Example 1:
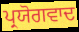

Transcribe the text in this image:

ਪ੍ਰਯੋਗਵਾਦ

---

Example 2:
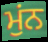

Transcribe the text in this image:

ਮੁਂਨ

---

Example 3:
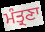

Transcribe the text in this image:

ਮੰਤ੍ਰਣਾ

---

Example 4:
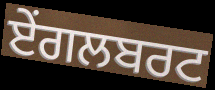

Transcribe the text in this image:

ਏਂਗਲਬਰਟ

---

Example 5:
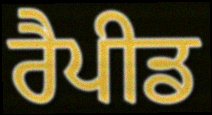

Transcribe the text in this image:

ਰੈਪੀਡ